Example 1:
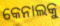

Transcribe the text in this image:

କେନାଲକୁ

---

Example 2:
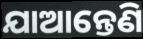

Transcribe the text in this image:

ଯାଆନ୍ତେଣି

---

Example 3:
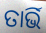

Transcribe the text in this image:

ତାର୍ଭି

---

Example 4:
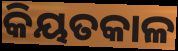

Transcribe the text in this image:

କିୟତକାଳ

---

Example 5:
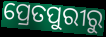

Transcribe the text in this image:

ପ୍ରେତପୁରୀରୁ